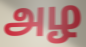
அழ